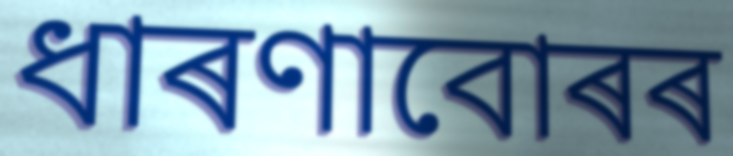
ধাৰণাবোৰৰ